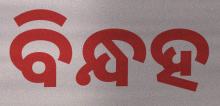
ବିନ୍ଧହ